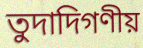
তুদাদিগণীয়